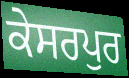
ਕੇਸਰਪੁਰ